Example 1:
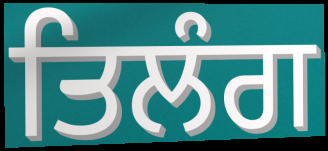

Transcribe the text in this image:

ਤਿਲੰਗ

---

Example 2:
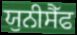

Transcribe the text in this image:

ਯੁਨੀਸੈੱਫ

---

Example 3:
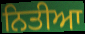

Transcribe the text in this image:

ਨਿਤੀਆ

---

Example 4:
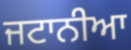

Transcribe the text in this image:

ਜਟਾਨੀਆ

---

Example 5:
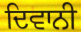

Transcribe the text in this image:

ਦਿਵਾਨੀ